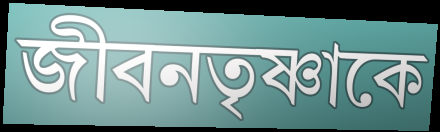
জীবনতৃষ্ণাকে